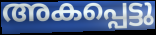
അകപ്പെട്ടു